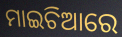
ମାଇଚିଆରେ